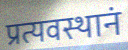
प्रत्यवस्थानं